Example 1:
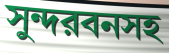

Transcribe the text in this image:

সুন্দরবনসহ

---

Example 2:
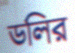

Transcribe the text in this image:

ডলির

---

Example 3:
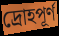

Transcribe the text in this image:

দ্রোহপূর্ণ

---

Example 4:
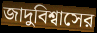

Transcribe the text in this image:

জাদুবিশ্বাসের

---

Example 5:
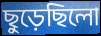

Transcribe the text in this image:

ছুড়েছিলো